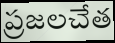
ప్రజలచేత